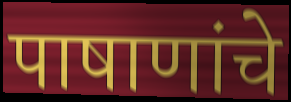
पाषाणांचे